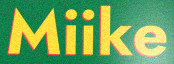
Miike